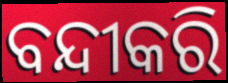
ବନ୍ଦୀକରି